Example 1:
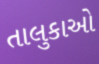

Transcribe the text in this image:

તાલુકાઓ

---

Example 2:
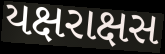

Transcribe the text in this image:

યક્ષરાક્ષસ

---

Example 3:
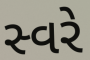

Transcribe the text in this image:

સ્વરે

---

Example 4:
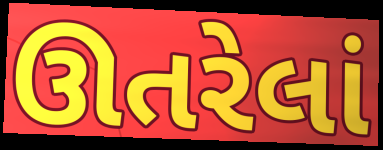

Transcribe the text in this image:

ઊતરેલાં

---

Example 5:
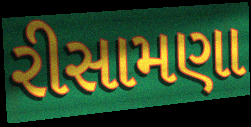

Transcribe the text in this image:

રીસામણા